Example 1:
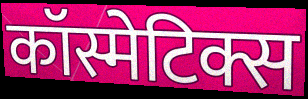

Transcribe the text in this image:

कॉस्मेटिक्स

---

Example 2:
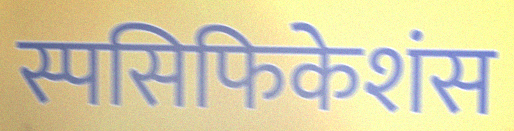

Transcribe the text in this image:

स्पसिफिकेशंस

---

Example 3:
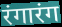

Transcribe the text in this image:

रंगारंग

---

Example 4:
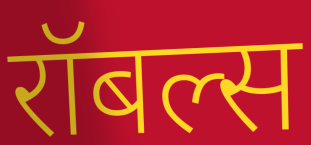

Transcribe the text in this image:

रॉबल्स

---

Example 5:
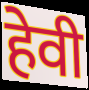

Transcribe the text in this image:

हेवी